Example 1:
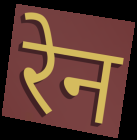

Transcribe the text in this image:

रेन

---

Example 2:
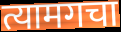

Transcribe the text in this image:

त्यामगचा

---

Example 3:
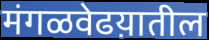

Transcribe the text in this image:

मंगळवेढय़ातील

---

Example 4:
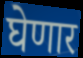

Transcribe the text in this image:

घेणार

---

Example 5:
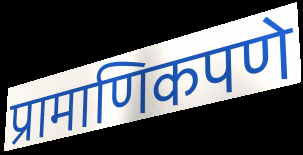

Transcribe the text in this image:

प्रामाणिकपणे